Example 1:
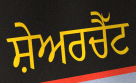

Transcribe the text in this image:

ਸ਼ੇਅਰਚੈੱਟ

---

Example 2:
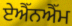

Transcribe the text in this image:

ਏਐੱਨਐੱਮ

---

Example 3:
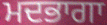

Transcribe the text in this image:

ਮਦਭਾਗਾ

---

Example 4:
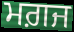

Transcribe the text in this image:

ਮਗ਼ਜ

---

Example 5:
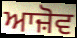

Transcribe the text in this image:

ਆਜ਼ੋਵ